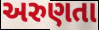
અરુણતા